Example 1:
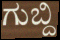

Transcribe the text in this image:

ಗುಬ್ದಿ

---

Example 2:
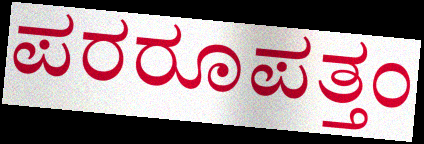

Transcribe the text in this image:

ಪರರೂಪತ್ತಂ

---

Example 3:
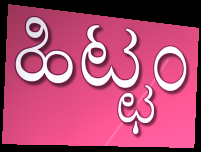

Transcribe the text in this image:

ಹಿಟ್ಟಂ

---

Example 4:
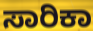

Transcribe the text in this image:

ಸಾರಿಕಾ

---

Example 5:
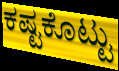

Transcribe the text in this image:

ಕಷ್ಟಕೊಟ್ಟು